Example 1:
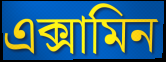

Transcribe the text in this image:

এক্সামিন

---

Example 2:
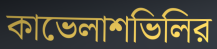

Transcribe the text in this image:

কাভেলাশভিলির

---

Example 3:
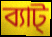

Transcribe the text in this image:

ব্যাট্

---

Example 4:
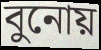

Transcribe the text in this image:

বুনোয়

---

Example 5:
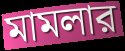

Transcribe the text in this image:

মামলার